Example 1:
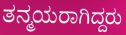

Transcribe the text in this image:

ತನ್ಮಯರಾಗಿದ್ದರು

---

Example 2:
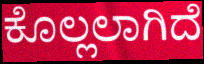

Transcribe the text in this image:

ಕೊಲ್ಲಲಾಗಿದೆ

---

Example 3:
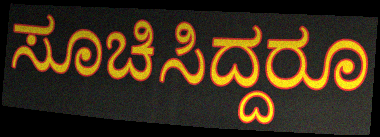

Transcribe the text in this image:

ಸೂಚಿಸಿದ್ದರೂ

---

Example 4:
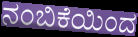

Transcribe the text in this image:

ನಂಬಿಕೆಯಿಂದ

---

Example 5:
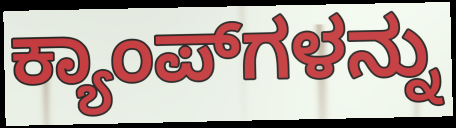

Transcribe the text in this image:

ಕ್ಯಾಂಪ್‍ಗಳನ್ನು